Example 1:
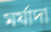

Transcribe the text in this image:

মর্যাদা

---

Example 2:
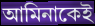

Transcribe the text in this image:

আমিনাকেই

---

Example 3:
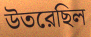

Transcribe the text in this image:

উতরেছিল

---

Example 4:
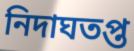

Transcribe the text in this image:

নিদাঘতপ্ত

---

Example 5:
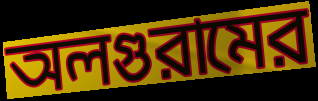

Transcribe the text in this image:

অলগুরামের